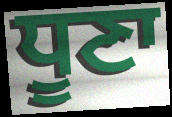
ਧੂਣਾ